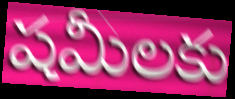
షమీలకు